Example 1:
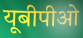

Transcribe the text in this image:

यूबीपीओ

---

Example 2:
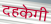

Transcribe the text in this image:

दहकेगी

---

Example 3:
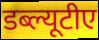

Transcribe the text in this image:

डब्ल्यूटीए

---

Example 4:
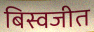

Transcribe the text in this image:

बिस्वजीत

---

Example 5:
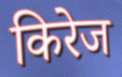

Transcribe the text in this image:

किरेज